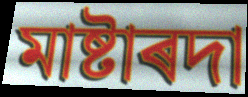
মাষ্টাৰদা